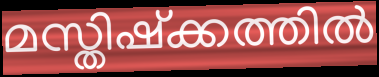
മസ്തിഷ്ക്കത്തിൽ